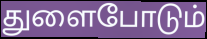
துளைபோடும்